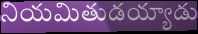
నియమితుడయ్యాడు